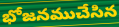
భోజనముచేసిన